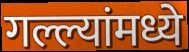
गल्ल्यांमध्ये